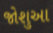
જોશુઆ